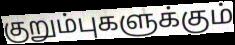
குறும்புகளுக்கும்